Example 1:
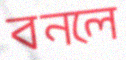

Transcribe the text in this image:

বনলে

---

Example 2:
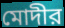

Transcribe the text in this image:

মোদীর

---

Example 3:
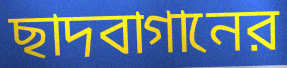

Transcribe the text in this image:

ছাদবাগানের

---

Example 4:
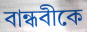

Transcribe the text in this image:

বান্ধবীকে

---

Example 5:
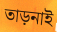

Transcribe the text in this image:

তাড়নাই